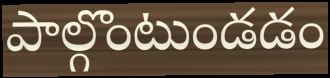
పాల్గొంటుండడం